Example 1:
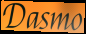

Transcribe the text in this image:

Dasmo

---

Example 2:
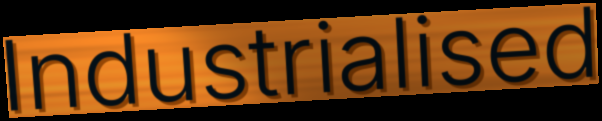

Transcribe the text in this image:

Industrialised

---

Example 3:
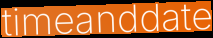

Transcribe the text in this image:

timeanddate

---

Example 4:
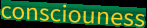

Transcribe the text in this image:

consciouness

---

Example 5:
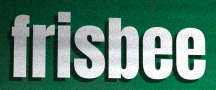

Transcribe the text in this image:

frisbee